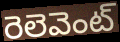
రెలెవెంట్